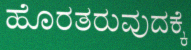
ಹೊರತರುವುದಕ್ಕೆ